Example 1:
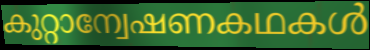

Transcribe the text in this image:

കുറ്റാന്വേഷണകഥകൾ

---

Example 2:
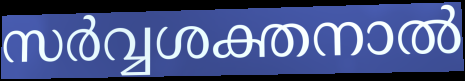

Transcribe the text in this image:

സർവ്വശക്തനാൽ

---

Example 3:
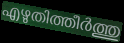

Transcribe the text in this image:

എഴുതിത്തീർത്തു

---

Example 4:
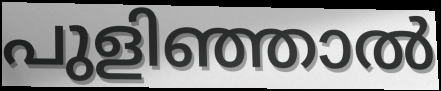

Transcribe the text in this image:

പുളിഞ്ഞാൽ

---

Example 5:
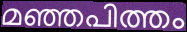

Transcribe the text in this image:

മഞ്ഞപിത്തം